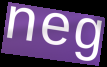
neg